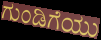
ಗುಂಡಿಗೆಯು